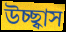
উচ্ছ্বাস